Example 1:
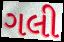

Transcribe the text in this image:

ગલી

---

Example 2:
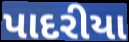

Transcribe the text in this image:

પાદરીયા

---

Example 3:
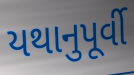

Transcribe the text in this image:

યથાનુપૂર્વી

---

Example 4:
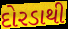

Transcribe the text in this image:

દોરડાથી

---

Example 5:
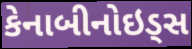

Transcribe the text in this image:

કેનાબીનોઇડ્સ